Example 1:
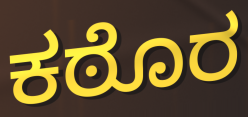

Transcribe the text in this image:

ಕಠೊರ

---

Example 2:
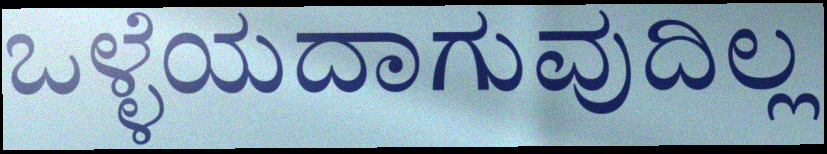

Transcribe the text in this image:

ಒಳ್ಳೆಯದಾಗುವುದಿಲ್ಲ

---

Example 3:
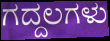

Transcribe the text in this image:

ಗದ್ದಲಗಳು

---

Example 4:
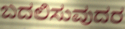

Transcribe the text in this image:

ಬದಲಿಸುವುದರ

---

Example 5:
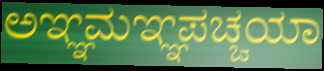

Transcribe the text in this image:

ಅಞ್ಞಮಞ್ಞಪಚ್ಚಯಾ